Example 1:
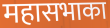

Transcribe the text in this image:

महासभाका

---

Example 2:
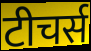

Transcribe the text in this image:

टीचर्स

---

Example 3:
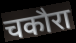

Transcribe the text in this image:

चकौरा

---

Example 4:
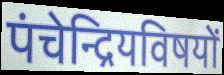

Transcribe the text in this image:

पंचेन्द्रियविषयों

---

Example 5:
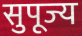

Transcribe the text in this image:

सुपूज्य